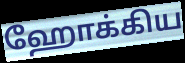
ஹோக்கிய